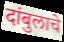
दांबुलाचे